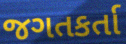
જગતકર્તા